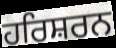
ਹਰਿਸ਼ਰਨ